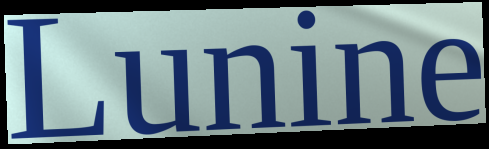
Lunine